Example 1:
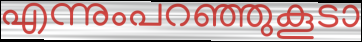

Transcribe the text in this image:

എന്നുംപറഞ്ഞുകൂടാ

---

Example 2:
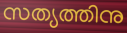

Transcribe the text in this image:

സത്യത്തിനു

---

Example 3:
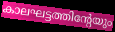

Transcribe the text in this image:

കാലഘട്ടത്തിന്റേയും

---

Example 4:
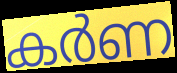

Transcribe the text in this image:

കർണ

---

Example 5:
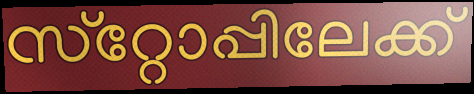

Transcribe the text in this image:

സ്‌റ്റോപ്പിലേക്ക്